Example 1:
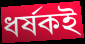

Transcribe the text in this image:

ধর্ষকই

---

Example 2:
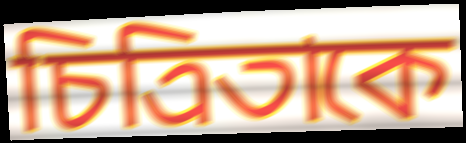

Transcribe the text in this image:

চিত্রিতাকে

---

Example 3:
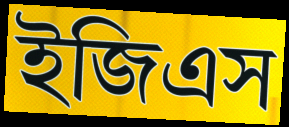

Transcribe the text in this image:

ইজিএস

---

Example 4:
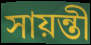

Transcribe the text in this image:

সায়ন্তী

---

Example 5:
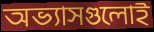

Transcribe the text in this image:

অভ্যাসগুলোই